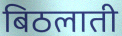
बिठलाती